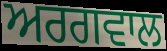
ਅਰਗਵਾਲ